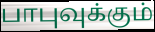
பாபுவுக்கும்